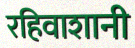
रहिवाशानी